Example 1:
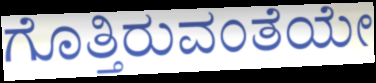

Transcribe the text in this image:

ಗೊತ್ತಿರುವಂತೆಯೇ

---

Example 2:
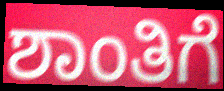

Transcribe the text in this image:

ಶಾಂತಿಗೆ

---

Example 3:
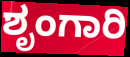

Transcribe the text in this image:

ಶೃಂಗಾರಿ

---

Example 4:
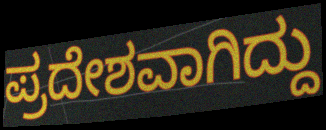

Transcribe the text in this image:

ಪ್ರದೇಶವಾಗಿದ್ದು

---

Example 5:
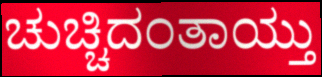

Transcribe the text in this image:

ಚುಚ್ಚಿದಂತಾಯ್ತು